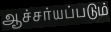
ஆச்சர்யப்படும்